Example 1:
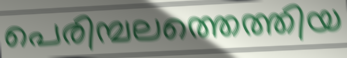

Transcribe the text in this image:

പെരിമ്പലത്തെത്തിയ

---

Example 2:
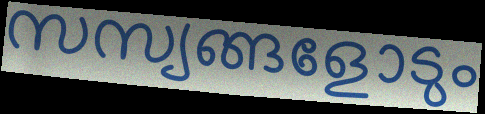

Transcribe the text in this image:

സസ്യങ്ങളോടും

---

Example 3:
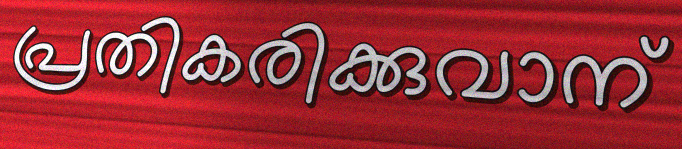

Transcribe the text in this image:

പ്രതികരിക്കുവാന്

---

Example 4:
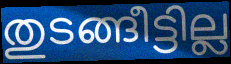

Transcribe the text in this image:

തുടങ്ങീട്ടില്ല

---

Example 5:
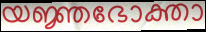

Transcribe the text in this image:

യജ്ഞഭോക്താ